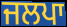
ਜਲਪਾ